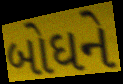
બોઘને